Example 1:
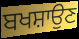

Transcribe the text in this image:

ਬਖਸ਼ਾਉਣ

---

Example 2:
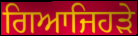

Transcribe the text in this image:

ਗਿਆਜਿਹੜੇ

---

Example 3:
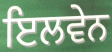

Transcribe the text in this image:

ਇਲਵੇਨ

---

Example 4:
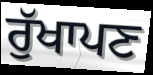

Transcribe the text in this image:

ਰੁੱਖਾਪਣ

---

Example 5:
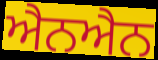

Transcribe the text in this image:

ਐਨਐਨ